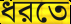
ধরতে